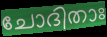
ചോദിതാഃ